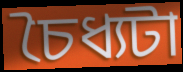
চৈধ্যটা